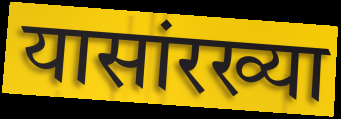
यासांरख्या